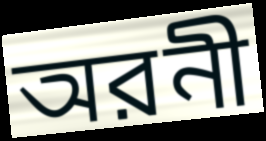
অরনী